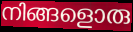
നിങ്ങളൊരു